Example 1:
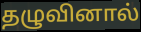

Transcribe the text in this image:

தழுவினால்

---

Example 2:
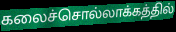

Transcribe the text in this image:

கலைச்சொல்லாக்கத்தில்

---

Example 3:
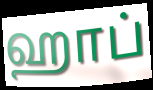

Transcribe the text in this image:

ஹாப்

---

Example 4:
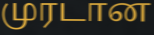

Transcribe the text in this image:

முரடான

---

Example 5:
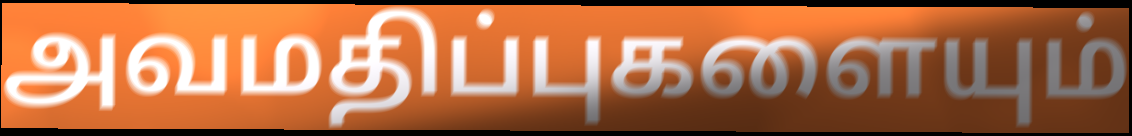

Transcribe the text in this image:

அவமதிப்புகளையும்